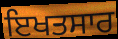
ਇਖਤਸਾਰ